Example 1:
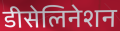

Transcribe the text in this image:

डीसेलिनेशन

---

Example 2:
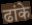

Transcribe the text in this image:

ढांके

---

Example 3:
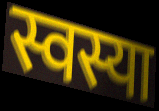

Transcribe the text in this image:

स्वस्या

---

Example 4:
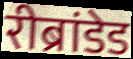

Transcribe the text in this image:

रीब्रांडेड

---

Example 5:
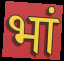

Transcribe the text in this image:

भां